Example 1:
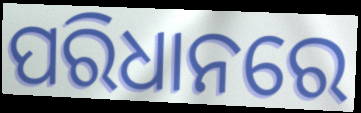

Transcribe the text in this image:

ପରିଧାନରେ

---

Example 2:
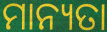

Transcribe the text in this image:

ମାନ୍ୟତା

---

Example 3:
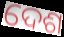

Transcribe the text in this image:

ଦେଶ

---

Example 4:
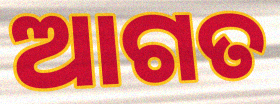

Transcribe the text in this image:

ଆଗତ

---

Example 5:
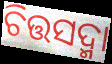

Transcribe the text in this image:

ଚିତ୍ତସଦ୍ମା